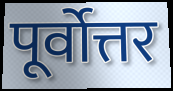
पूर्वोत्तर